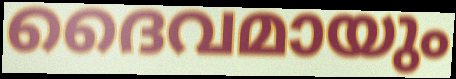
ദൈവമായും